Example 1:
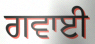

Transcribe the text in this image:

ਗਵਾਈ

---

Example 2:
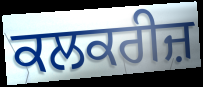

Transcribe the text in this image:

ਕਲਕਰੀਜ਼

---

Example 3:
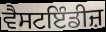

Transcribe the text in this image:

ਵੈਸਟਇੰਡੀਜ਼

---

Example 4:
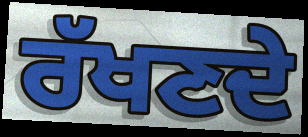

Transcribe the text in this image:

ਰੱਖਣਦੇ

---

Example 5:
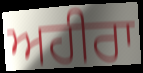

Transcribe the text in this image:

ਅਹੀਰਾ